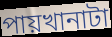
পায়খানাটা